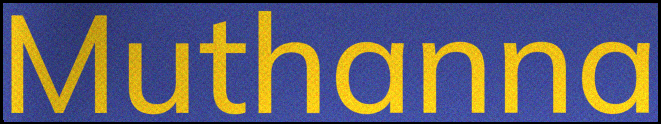
Muthanna